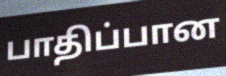
பாதிப்பான